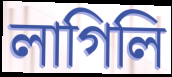
লাগিলি